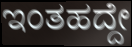
ಇಂತಹದ್ದೇ